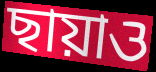
ছায়াও